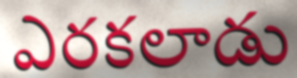
ఎరకలాడు